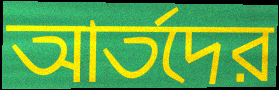
আর্তদের